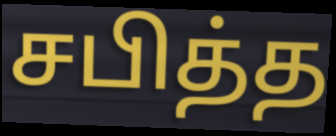
சபித்த